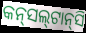
କନ୍‌ସଲ୍‌ଟାନ୍‌ସି